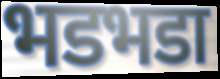
भडभडा